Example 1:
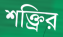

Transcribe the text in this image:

শক্ত্রির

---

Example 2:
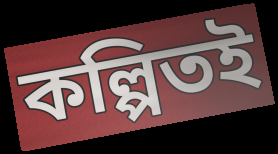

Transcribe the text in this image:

কল্পিতই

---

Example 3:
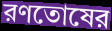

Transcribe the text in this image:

রণতোষের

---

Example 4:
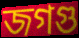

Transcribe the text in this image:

জগগু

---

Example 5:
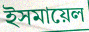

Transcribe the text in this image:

ইসমায়েল